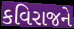
કવિરાજને